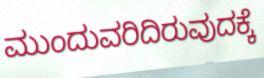
ಮುಂದುವರಿದಿರುವುದಕ್ಕೆ